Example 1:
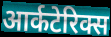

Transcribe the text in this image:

आर्कटेरिक्स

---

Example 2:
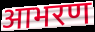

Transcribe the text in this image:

आभरण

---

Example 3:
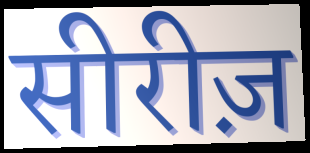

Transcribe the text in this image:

सीरीज़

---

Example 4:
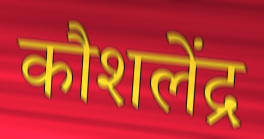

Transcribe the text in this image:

कौशलेंद्र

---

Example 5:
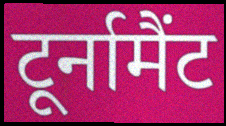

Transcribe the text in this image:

टूर्नामैंट